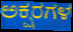
ಅಕ್ಷರಗಳ